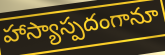
హాస్యాస్పదంగానూ